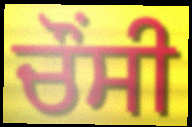
ਚੌਂਸੀ